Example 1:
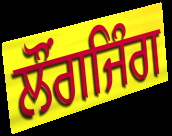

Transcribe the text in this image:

ਲੌਂਗਜਿੰਗ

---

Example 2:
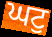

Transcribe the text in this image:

ਘਟੁ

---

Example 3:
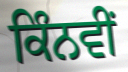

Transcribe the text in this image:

ਕਿੰਨਵੀਂ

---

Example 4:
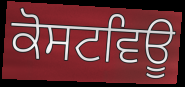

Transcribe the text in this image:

ਕੋਸਟਵਿਊ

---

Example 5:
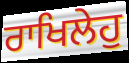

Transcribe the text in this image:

ਰਾਖਿਲੇਹੁ